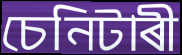
চেনিটাৰী